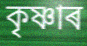
কৃষ্ণাৰ